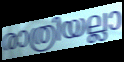
രാത്രിയല്ലാ